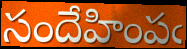
సందేహింపఁ